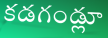
కడగండ్లూ